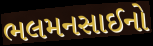
ભલમનસાઈનો